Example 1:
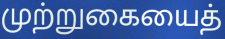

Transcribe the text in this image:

முற்றுகையைத்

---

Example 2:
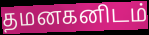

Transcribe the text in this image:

தமனகனிடம்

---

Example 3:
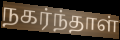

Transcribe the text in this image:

நகர்ந்தாள்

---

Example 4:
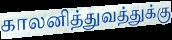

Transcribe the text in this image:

காலனித்துவத்துக்கு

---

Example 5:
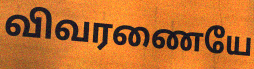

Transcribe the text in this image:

விவரணையே